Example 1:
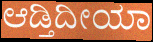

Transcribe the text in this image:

ಆಡ್ತಿದೀಯಾ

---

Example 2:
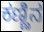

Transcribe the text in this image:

ಕಣ್ಣಿನ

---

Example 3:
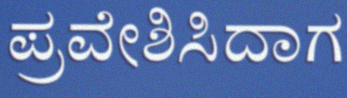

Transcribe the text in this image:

ಪ್ರವೇಶಿಸಿದಾಗ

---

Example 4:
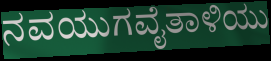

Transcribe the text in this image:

ನವಯುಗವೈತಾಳಿಯು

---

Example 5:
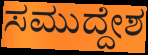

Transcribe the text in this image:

ಸಮುದ್ದೇಶ